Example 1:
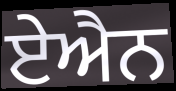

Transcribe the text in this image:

ਏਐਨ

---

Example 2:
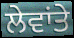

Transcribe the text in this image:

ਲੇਵਾਂਤੇ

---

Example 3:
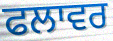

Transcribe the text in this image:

ਫਲਾਵਰ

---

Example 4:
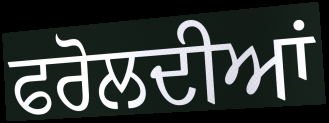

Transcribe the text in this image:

ਫਰੋਲਦੀਆਂ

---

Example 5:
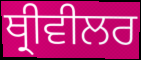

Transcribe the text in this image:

ਥ੍ਰੀਵੀਲਰ